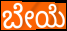
ಬೇಯೆ